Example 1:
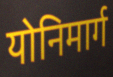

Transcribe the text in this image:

योनिमार्ग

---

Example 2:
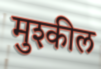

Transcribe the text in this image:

मुश्कील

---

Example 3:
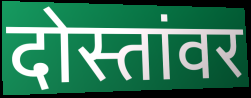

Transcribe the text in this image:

दोस्तांवर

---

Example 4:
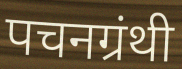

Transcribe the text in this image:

पचनग्रंथी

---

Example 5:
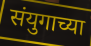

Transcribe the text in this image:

संयुगाच्या